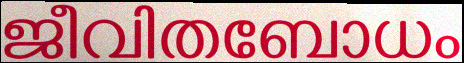
ജീവിതബോധം